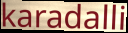
karadalli